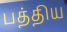
பத்திய